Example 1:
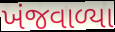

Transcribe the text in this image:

ખંજવાળ્યા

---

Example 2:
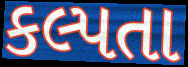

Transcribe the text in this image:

કલ્પતા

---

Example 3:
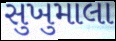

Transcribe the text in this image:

સુખુમાલા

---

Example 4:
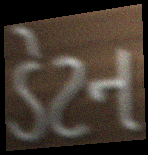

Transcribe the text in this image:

ડેટન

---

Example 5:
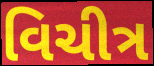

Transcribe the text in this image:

વિચીત્ર